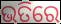
ଭତିରେ